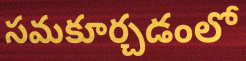
సమకూర్చడంలో